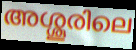
അശ്ശൂരിലെ